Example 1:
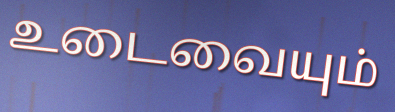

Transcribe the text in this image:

உடைவையும்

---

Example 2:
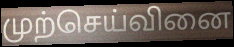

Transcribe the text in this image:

முற்செய்வினை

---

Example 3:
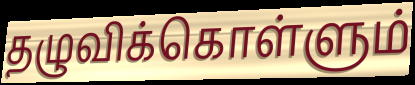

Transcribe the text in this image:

தழுவிக்கொள்ளும்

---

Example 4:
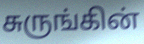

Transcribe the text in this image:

சுருங்கின்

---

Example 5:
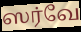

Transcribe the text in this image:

ஸர்வே